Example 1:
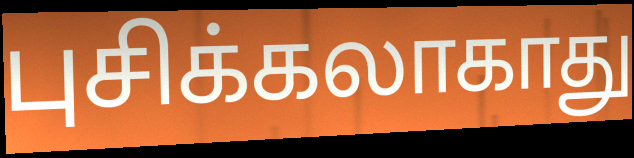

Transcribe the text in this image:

புசிக்கலாகாது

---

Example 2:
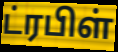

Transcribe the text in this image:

ட்ரபிள்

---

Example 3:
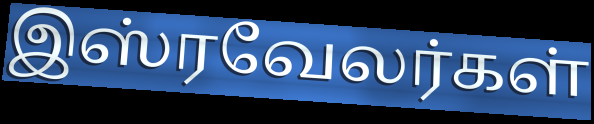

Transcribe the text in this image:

இஸ்ரவேலர்கள்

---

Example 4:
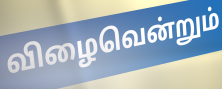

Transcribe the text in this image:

விழைவென்றும்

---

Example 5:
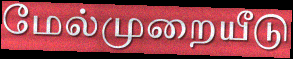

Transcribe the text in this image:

மேல்முறையீடு